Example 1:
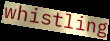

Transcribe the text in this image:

whistling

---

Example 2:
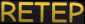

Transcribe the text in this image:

RETEP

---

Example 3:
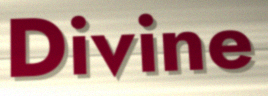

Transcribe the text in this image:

Divine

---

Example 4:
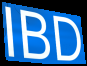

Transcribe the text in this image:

IBD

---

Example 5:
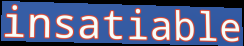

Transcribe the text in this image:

insatiable